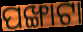
ପଙ୍ଖାଟା